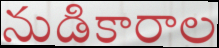
నుడికారాల